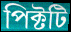
পিক্টটি